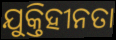
ଯୁକ୍ତିହୀନତା